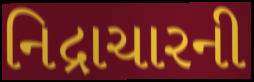
નિદ્રાચારની